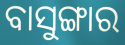
ବାସୁଙ୍ଗାର